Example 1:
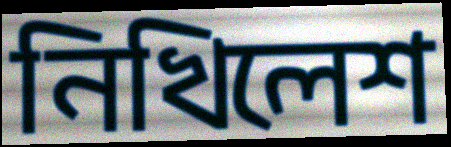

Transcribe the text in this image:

নিখিলেশ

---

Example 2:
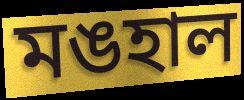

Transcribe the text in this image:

মঙহাল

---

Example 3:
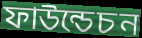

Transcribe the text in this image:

ফাউন্ডেচন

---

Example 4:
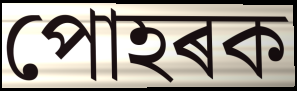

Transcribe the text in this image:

পোহৰক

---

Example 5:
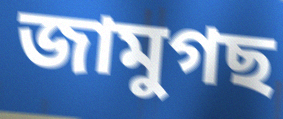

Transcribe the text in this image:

জামুগছ